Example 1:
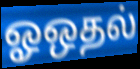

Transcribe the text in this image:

ஓஒதல்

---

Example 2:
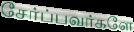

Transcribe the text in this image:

சேர்ப்பவர்களே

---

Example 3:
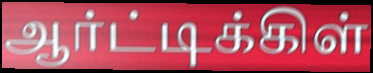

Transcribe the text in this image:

ஆர்ட்டிக்கிள்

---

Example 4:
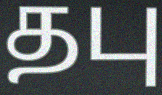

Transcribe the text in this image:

தபு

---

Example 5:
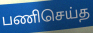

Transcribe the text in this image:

பணிசெய்த